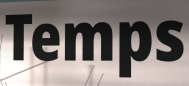
Temps